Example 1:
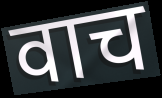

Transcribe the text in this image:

वाच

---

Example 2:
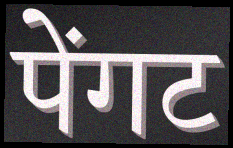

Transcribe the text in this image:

पेंगट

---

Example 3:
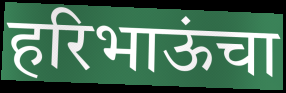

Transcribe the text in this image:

हरिभाऊंचा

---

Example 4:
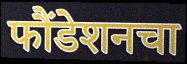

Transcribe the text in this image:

फौंडेशनचा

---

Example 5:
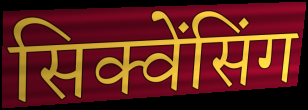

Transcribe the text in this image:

सिक्वेंसिंग